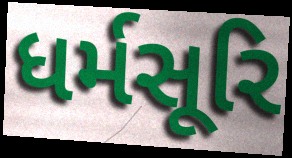
ધર્મસૂરિ